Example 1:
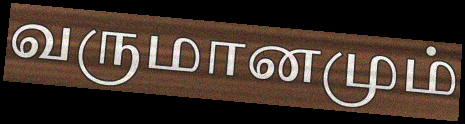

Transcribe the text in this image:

வருமானமும்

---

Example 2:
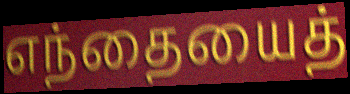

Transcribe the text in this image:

எந்தையைத்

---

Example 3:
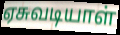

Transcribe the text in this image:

ஏசுவடியாள்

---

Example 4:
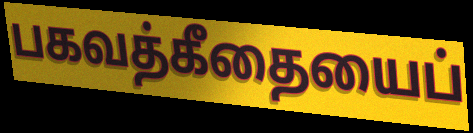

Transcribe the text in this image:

பகவத்கீதையைப்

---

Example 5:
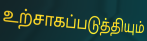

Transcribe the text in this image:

உற்சாகப்படுத்தியும்